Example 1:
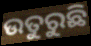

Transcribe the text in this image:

ଉତୁରୁଛି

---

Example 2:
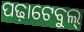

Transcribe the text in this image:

ପଢ଼ାଟେବୁଲ୍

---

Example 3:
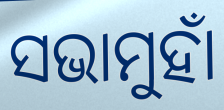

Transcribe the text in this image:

ସଭାମୁହାଁ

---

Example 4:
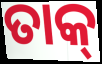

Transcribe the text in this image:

ତାକ୍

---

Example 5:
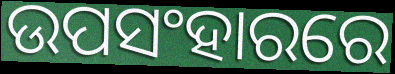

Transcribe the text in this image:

ଉପସଂହାରରେ